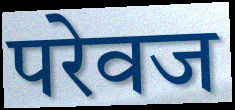
परेवज